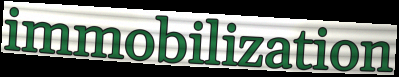
immobilization